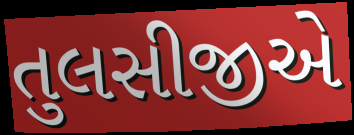
તુલસીજીએ